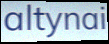
altynai